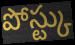
పోస్ట్కు